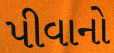
પીવાનો